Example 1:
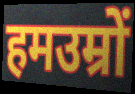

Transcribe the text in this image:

हमउम्रों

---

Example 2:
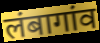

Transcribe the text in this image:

लंबागांव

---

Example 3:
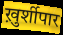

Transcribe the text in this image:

ख़ुर्शीपार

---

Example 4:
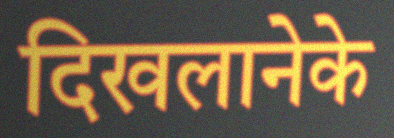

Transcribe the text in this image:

दिखलानेके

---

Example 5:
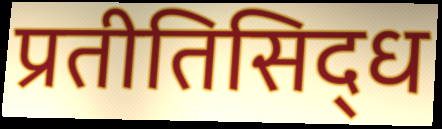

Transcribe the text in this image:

प्रतीतिसिद्ध